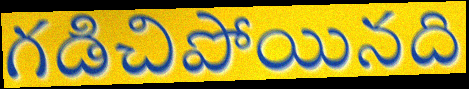
గడిచిపోయినది